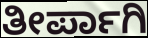
ತೀರ್ಪಾಗಿ